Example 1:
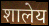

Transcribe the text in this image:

शालेय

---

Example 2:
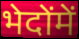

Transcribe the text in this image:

भेदोंमें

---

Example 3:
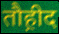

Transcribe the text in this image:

तौह़ीद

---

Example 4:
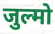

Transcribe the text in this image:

जुल्मो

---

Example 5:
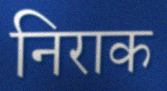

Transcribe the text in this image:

निराक